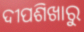
ଦୀପଶିଖାରୁ